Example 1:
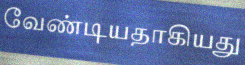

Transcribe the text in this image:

வேண்டியதாகியது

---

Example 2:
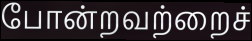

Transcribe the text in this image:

போன்றவற்றைச்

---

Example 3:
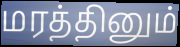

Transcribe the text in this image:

மரத்தினும்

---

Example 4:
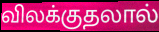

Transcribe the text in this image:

விலக்குதலால்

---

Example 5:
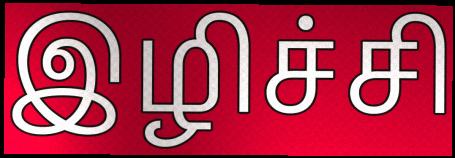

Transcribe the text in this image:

இழிச்சி